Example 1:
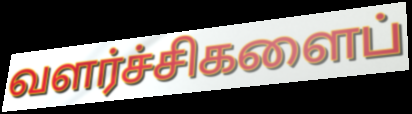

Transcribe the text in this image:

வளர்ச்சிகளைப்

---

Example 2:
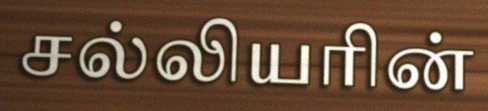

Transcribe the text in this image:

சல்லியரின்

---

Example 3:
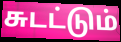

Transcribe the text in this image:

சுடட்டும்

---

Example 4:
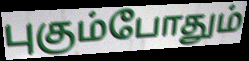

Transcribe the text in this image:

புகும்போதும்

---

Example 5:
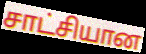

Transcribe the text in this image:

சாட்சியான